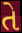
તે